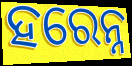
ହରେନ୍ନ